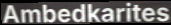
Ambedkarites